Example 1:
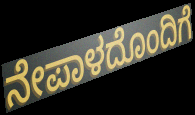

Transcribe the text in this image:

ನೇಪಾಳದೊಂದಿಗೆ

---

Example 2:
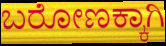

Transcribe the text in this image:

ಬರೋಣಕ್ಕಾಗಿ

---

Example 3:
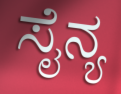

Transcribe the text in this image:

ಸೈನ್ಯ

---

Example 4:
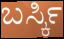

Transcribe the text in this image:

ಬರ್ಸ್ಕಿ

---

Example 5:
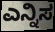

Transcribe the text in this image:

ಎನ್ನಿಸ